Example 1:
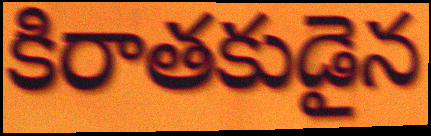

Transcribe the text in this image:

కిరాతకుడైన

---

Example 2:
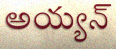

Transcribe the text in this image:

అయ్యన్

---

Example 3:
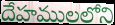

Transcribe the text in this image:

దేహములలోని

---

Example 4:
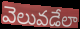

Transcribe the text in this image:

వెలువడేలా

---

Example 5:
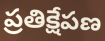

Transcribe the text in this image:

ప్రతిక్షేపణ